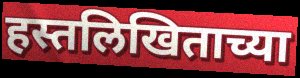
हस्तलिखिताच्या